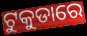
ଟୁକୁଡାରେ